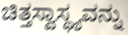
ಚಿತ್ತಸ್ವಾಸ್ಥ್ಯವನ್ನು